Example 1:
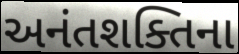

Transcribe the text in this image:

અનંતશક્તિના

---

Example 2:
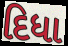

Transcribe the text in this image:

દિધા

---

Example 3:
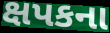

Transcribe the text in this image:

ક્ષપકના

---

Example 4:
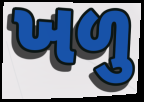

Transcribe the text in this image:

ખળુ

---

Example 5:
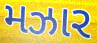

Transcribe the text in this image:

મઝાર